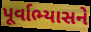
પૂર્વાભ્યાસને